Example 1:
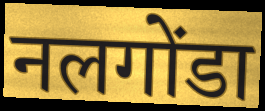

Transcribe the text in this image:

नलगोंडा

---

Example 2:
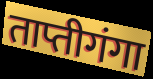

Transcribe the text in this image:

ताप्तीगंगा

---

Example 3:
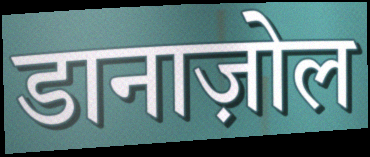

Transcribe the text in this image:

डानाज़ोल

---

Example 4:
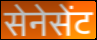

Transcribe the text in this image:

सेनेसेंट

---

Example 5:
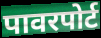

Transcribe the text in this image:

पावरपोर्ट